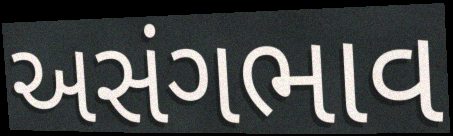
અસંગભાવ